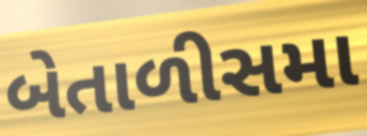
બેતાળીસમા